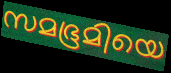
സമഭൂമിയെ